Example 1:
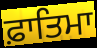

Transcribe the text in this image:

ਫ਼ਾਤਿਮਾ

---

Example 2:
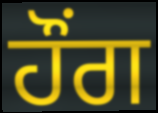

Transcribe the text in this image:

ਹੌਂਗ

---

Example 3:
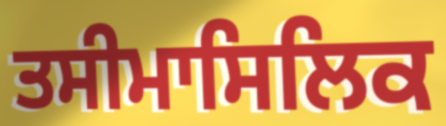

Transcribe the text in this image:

ਤਸੀਮਾਸਿਲਿਕ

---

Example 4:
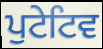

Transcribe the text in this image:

ਪੁਟੇਟਿਵ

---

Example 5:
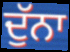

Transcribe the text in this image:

ਦੁੱਨਾ